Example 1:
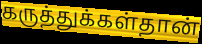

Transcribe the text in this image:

கருத்துக்கள்தான்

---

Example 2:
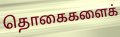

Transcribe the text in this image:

தொகைகளைக்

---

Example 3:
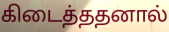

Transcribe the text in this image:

கிடைத்ததனால்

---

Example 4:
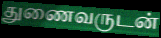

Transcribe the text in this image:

துணைவருடன்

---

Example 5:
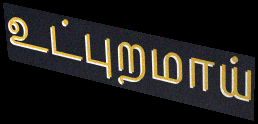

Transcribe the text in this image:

உட்புறமாய்